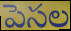
పెసల